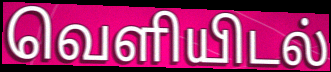
வெளியிடல்